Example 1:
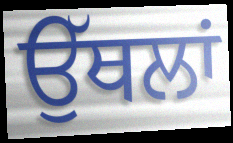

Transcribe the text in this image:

ਉੱਥਲਾਂ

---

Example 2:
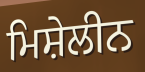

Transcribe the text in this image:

ਮਿਸ਼ੇਲੀਨ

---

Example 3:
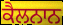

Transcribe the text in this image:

ਕੈਲਨਾਨ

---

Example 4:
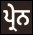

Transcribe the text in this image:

ਪ੍ਰੇਨ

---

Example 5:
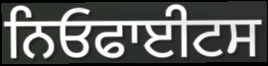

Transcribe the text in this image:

ਨਿਓਫਾਈਟਸ